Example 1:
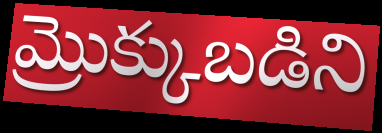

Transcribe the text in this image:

మ్రొక్కుబడిని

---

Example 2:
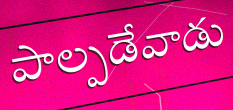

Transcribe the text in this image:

పాల్పడేవాడు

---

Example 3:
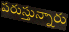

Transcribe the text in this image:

పరుస్తున్నారు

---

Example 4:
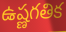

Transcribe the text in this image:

ఉష్ణగతిక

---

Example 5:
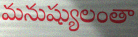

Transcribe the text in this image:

మనుష్యులంతా